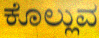
ಕೊಲ್ಲುವ